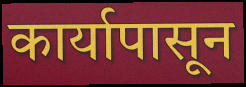
कार्यापासून